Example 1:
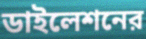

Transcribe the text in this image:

ডাইলেশনের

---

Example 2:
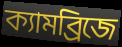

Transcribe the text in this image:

ক্যামব্রিজে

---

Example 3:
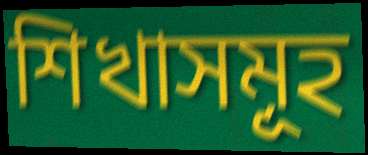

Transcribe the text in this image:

শিখাসমূহ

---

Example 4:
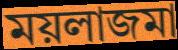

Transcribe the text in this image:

ময়লাজমা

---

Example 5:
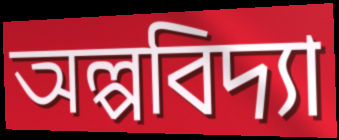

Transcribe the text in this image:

অল্পবিদ্যা